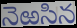
నెఱసిన